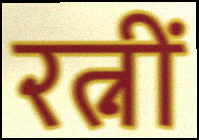
रत्नीं